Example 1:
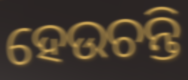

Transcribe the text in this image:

ହେଉଚନ୍ତି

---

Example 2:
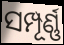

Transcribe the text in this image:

ସମ୍ପୂର୍ଣ୍ଣ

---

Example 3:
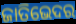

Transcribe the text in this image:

ଜାତିଭେଦର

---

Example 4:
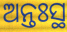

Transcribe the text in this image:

ଅନ୍ତଃସ୍ଥ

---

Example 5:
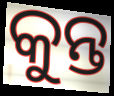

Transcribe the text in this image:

କୁନ୍ତ